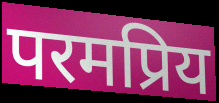
परमप्रिय